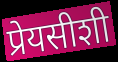
प्रेयसीशी